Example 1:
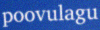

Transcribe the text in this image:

poovulagu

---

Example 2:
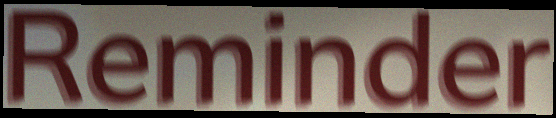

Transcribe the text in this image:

Reminder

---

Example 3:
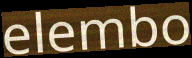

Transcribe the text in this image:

elembo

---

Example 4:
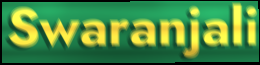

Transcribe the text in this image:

Swaranjali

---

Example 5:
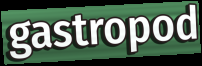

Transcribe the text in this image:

gastropod